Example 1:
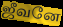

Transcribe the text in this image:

ஜீவனே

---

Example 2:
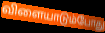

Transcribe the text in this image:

விளையாடும்போது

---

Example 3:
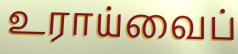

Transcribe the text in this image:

உராய்வைப்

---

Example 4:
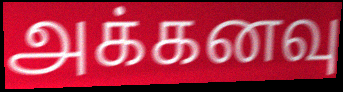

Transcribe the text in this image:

அக்கனவு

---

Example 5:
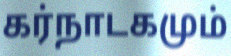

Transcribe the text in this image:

கர்நாடகமும்